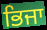
ਭਿਜਾ